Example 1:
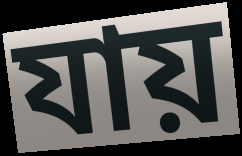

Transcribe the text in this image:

যায়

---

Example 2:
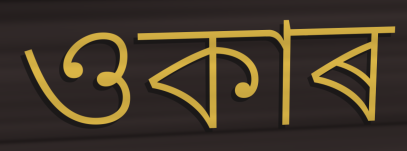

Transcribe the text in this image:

ওকাৰ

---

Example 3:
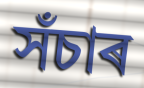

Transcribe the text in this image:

সঁচাৰ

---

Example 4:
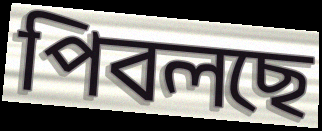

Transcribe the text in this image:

পিবলছে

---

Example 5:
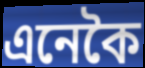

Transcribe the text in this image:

এনেকৈ